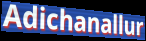
Adichanallur